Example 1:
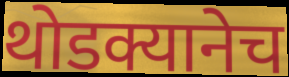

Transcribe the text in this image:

थोडक्यानेच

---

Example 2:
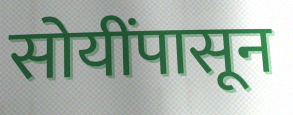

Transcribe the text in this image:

सोयींपासून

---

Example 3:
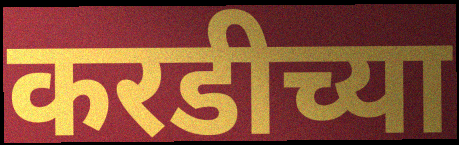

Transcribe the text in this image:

करडीच्या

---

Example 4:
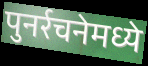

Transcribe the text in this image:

पुनर्रचनेमध्ये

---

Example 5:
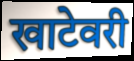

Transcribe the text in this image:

खाटेवरी